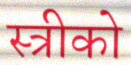
स्त्रीको